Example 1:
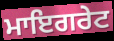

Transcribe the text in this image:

ਮਾਇਗਰੇਟ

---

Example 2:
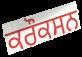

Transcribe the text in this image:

ਕਰੌਕਸਨ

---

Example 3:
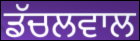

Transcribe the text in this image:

ਡੱਚਲਵਾਲ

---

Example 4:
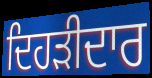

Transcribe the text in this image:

ਦਿਹੜੀਦਾਰ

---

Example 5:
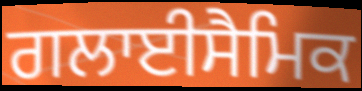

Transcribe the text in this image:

ਗਲਾਈਸੈਮਿਕ